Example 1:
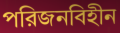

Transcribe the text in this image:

পরিজনবিহীন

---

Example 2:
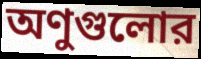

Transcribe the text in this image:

অণুগুলোর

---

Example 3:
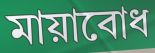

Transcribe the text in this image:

মায়াবোধ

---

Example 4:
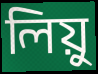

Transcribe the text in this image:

লিয়ু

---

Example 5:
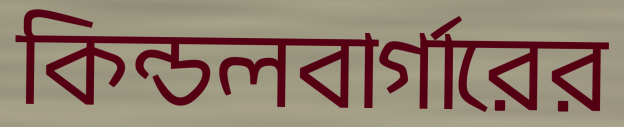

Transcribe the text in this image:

কিন্ডলবার্গারের